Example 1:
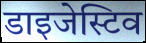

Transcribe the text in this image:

डाइजेस्टिव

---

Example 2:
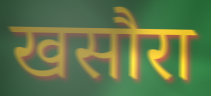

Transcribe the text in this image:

खसौरा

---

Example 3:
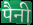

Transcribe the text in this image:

पैनी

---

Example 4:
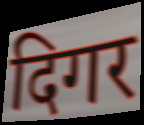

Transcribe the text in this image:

दिगर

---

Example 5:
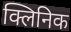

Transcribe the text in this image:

क्लिनिक